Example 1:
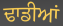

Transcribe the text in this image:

ਢਾਡੀਆਂ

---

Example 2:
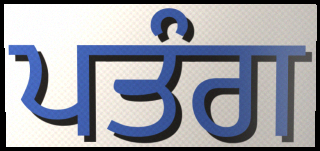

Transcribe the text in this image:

ਪਤੰਗ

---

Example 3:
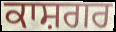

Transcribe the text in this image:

ਕਾਸ਼ਗਰ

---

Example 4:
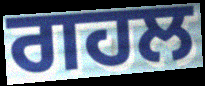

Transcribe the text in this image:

ਗਹਲ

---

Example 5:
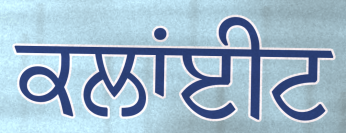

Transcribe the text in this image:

ਕਲਾਂਈਟ